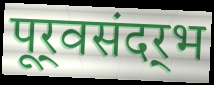
पूर्वसंदर्भ